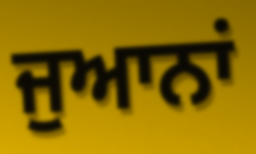
ਜੁਆਨਾਂ